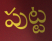
పుట్ట